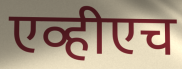
एव्हीएच